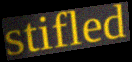
stifled